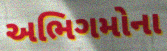
અભિગમોના